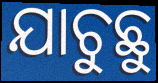
ଯାଚୁଛୁ